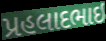
પ્રહલાદભાઇ